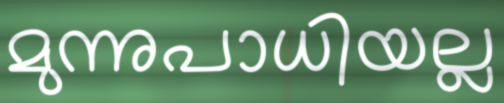
മുന്നുപാധിയല്ല